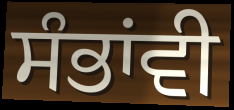
ਸੰਭਾਂਵੀ